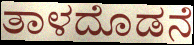
ತಾಳದೊಡನೆ